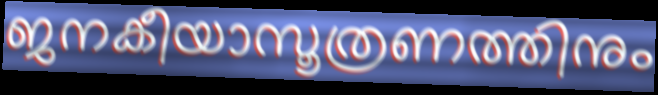
ജനകീയാസൂത്രണത്തിനും